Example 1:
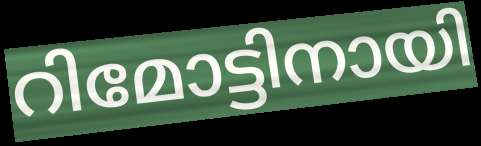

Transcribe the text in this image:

റിമോട്ടിനായി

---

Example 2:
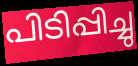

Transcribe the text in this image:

പിടിപ്പിച്ചു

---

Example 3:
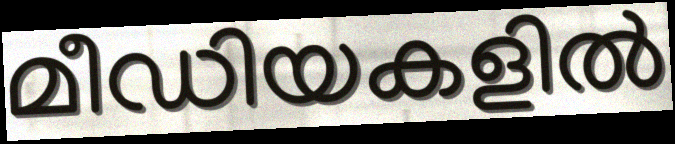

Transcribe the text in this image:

മീഡിയകളിൽ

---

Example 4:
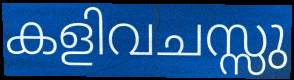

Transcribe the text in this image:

കളിവചസ്സു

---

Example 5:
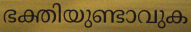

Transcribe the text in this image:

ഭക്തിയുണ്ടാവുക